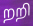
றறி